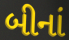
બીનાં